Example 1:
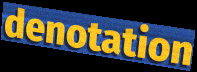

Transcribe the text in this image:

denotation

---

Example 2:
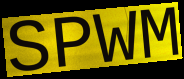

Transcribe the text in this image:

SPWM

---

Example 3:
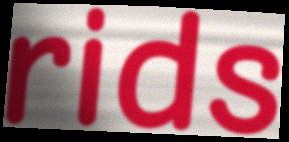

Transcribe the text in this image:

rids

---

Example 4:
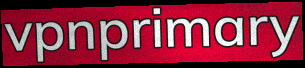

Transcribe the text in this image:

vpnprimary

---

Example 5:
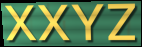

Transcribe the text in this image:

XXYZ